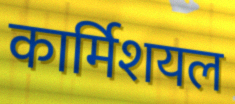
कार्मिशयल